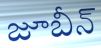
జూబీన్